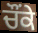
ਚੌਂਕੇ